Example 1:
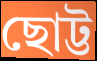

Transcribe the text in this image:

ছোট্ট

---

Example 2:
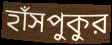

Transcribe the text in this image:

হাঁসপুকুর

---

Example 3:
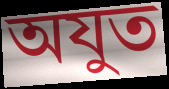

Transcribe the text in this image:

অযুত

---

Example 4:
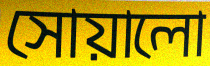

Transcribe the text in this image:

সোয়ালো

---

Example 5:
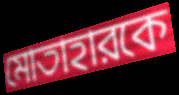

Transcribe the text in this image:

মোতাহারকে